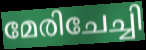
മേരിചേച്ചി